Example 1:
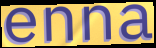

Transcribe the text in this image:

enna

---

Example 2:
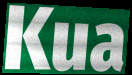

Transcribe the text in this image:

Kua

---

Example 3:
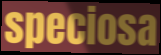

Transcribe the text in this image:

speciosa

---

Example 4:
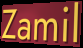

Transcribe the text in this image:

Zamil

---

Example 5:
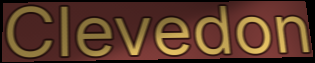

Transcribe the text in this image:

Clevedon